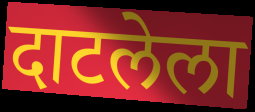
दाटलेला